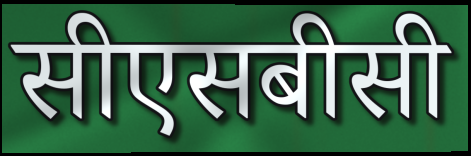
सीएसबीसी